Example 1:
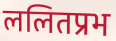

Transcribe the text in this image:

ललितप्रभ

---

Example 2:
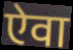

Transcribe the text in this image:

ऐवा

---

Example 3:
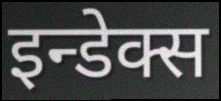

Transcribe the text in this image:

इन्डेक्स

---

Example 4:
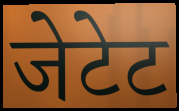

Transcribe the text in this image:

जेटेट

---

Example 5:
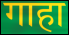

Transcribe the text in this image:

गाहा